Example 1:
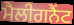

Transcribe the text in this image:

ਮੈਲੀਗਨੈਂਟ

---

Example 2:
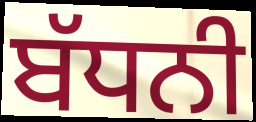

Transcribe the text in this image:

ਬੱਧਨੀ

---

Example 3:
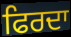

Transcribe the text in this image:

ਫਿਰਦਾ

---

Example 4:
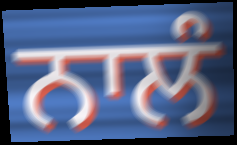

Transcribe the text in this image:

ਨਾਲੰ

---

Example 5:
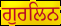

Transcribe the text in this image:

ਗੁਰਲਿਨ